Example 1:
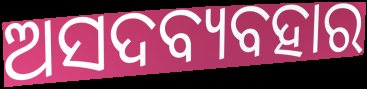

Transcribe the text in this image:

ଅସଦବ୍ୟବହାର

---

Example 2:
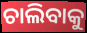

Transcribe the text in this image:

ଚାଲିବାକୁ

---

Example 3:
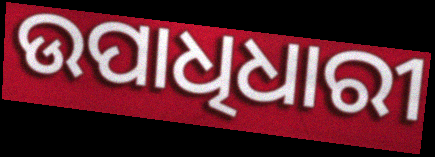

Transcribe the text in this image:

ଉପାଧିଧାରୀ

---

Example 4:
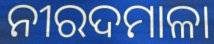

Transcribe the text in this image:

ନୀରଦମାଳା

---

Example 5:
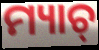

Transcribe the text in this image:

ମ୍ୟାଚ୍